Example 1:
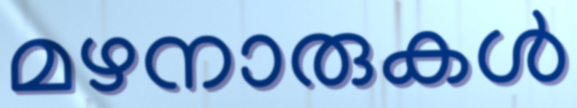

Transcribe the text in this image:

മഴനാരുകൾ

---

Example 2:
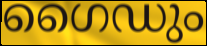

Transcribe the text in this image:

ഗൈഡും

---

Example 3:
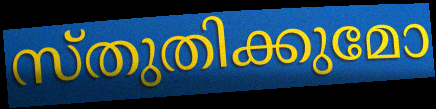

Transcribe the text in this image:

സ്തുതിക്കുമോ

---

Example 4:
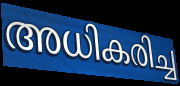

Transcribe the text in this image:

അധികരിച്ച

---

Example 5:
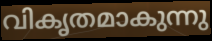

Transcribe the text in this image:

വികൃതമാകുന്നു